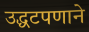
उद्धटपणाने